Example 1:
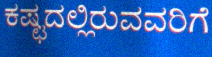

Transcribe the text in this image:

ಕಷ್ಟದಲ್ಲಿರುವವರಿಗೆ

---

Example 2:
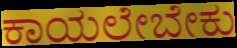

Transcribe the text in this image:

ಕಾಯಲೇಬೇಕು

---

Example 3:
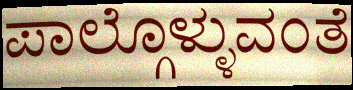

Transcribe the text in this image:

ಪಾಲ್ಗೊಳ್ಳುವಂತೆ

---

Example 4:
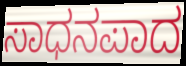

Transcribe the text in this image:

ಸಾಧನಪಾದ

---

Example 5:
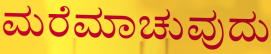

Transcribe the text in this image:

ಮರೆಮಾಚುವುದು